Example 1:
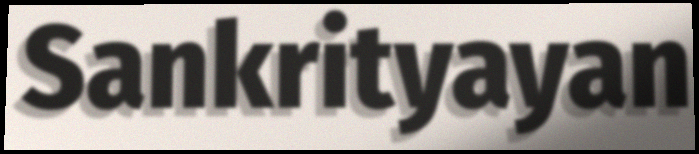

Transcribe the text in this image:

Sankrityayan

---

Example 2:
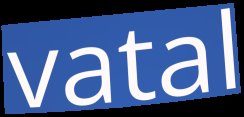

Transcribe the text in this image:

vatal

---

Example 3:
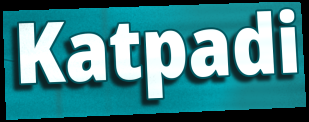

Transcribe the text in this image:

Katpadi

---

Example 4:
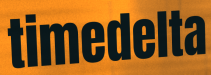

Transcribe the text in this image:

timedelta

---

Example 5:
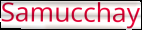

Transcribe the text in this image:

Samucchay